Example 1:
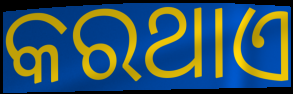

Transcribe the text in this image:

କରଥାଏ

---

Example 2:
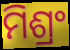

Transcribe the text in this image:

ମିଶ୍ରଂ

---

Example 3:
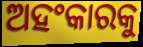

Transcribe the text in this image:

ଅହଂକାରକୁ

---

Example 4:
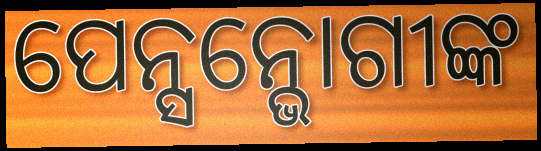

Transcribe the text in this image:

ପେନ୍ସନ୍ଭୋଗୀଙ୍କ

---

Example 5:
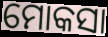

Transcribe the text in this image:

ମୋକସା